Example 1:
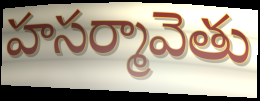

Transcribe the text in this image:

హసర్మావెతు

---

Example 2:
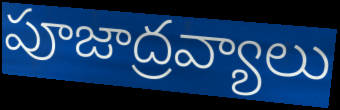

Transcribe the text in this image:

పూజాద్రవ్యాలు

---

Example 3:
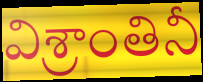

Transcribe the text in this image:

విశ్రాంతినీ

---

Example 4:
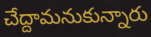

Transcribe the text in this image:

చేద్దామనుకున్నారు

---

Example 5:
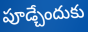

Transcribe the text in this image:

పూడ్చేందుకు